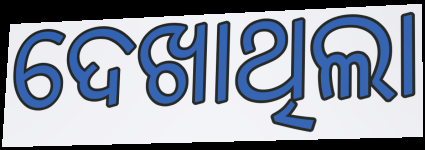
ଦେଖାଥିଲା